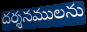
దర్శనములను